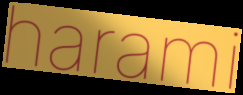
harami